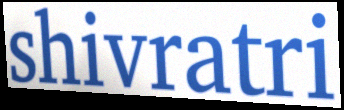
shivratri